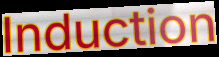
Induction